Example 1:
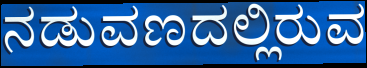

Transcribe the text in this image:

ನಡುವಣದಲ್ಲಿರುವ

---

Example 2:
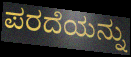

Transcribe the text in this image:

ಪರದೆಯನ್ನು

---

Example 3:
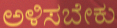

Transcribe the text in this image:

ಅಳಿಸಬೇಕು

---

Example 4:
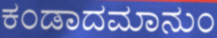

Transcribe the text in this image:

ಕಂಡಾದಮಾನುಂ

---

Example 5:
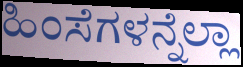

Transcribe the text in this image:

ಹಿಂಸೆಗಳನ್ನೆಲ್ಲಾ